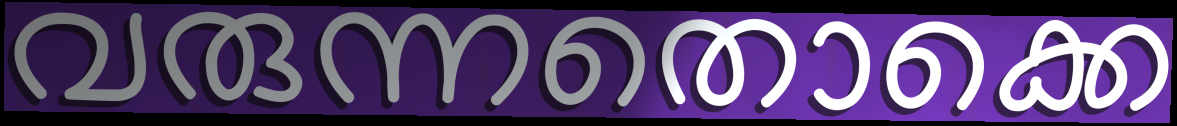
വരുന്നതൊക്കെ